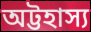
অট্টহাস্য